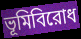
ভূমিবিরোধ